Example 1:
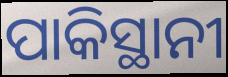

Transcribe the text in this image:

ପାକିସ୍ଥାନୀ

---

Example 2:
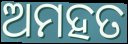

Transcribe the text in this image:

ଅମହତ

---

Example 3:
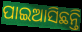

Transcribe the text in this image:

ପାଇଆସିଛନ୍ତି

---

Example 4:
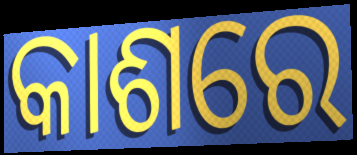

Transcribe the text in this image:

କାଶରେ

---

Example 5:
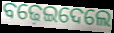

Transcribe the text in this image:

ବଢ଼େଇଦେଲେ